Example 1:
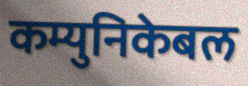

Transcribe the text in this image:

कम्युनिकेबल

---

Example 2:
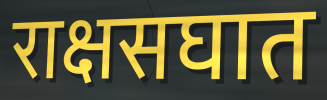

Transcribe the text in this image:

राक्षसघात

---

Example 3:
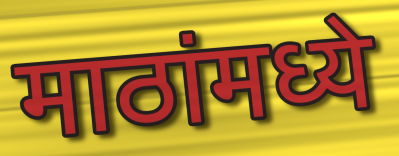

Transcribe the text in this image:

माठांमध्ये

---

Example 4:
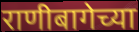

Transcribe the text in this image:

राणीबागेच्या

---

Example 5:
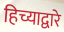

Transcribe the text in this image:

हिच्याद्वारे